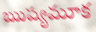
ఋష్యమూక